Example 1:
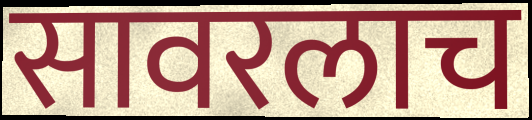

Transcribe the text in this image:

सावरलाच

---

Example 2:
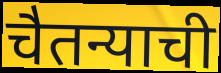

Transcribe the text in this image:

चैतन्याची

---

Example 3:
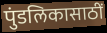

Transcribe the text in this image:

पुंडलिकासाठीं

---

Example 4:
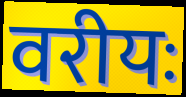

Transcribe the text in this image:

वरीयः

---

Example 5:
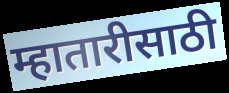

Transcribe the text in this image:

म्हातारीसाठी